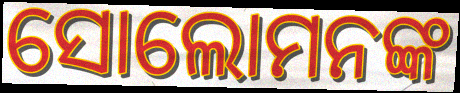
ସୋଲୋମନଙ୍କ